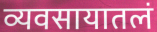
व्यवसायातलं